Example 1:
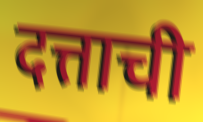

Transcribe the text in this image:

दत्ताची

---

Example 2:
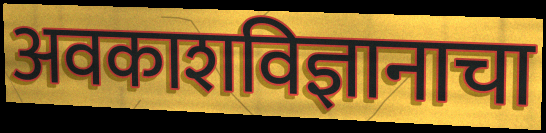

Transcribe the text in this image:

अवकाशविज्ञानाचा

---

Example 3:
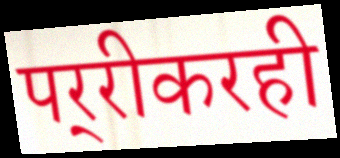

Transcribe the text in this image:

पर्रीकरही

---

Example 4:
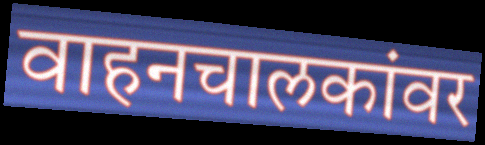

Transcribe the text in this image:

वाहनचालकांवर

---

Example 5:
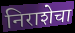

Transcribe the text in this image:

निराशेचा